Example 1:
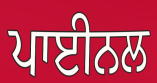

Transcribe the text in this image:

ਪਾਈਨਲ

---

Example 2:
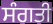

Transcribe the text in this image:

ਸੰਗਤੀ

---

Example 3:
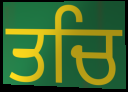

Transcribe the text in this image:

ਤਚਿ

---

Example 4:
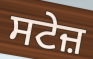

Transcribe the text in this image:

ਸਟੇਜ਼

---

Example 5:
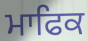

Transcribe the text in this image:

ਮਾਫਿਕ